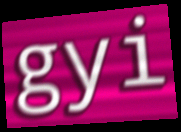
gyi